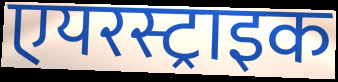
एयरस्ट्राइक